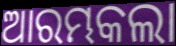
ଆରମ୍ଭକଲା